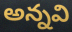
అన్నవి